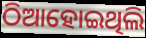
ଠିଆହୋଇଥିଲି